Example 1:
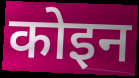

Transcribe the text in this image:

कोइन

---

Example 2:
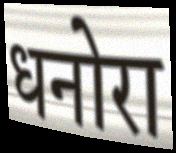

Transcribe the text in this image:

धनोरा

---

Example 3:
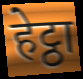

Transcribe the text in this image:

हेट्ठा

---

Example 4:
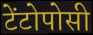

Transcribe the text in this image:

टेंटोपोसी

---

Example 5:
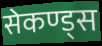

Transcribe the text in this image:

सेकण्ड्स